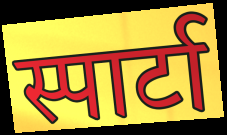
स्पार्टा